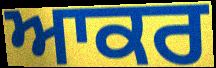
ਆਕਰ